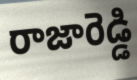
రాజారెడ్డి